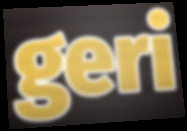
geri